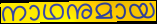
നാഥനുമായ